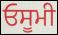
ਓਸੂਮੀ